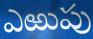
ఎఱుపు